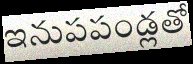
ఇనుపపండ్లతో